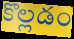
కొల్లడం